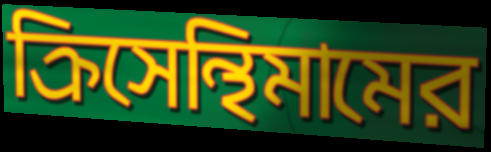
ক্রিসেন্থিমামের